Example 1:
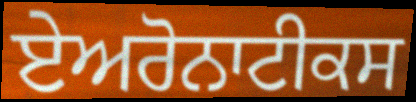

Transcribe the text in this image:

ਏਅਰੋਨਾਟੀਕਸ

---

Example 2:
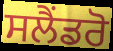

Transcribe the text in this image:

ਸਲੈਂਡਰੋ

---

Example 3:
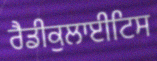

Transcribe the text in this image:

ਰੈਡੀਕੁਲਾਈਟਿਸ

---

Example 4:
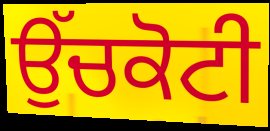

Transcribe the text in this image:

ਉੱਚਕੋਟੀ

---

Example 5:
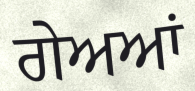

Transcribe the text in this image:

ਗੇਅਆਂ